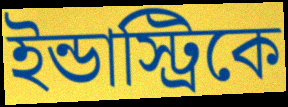
ইন্ডাস্ট্রিকে